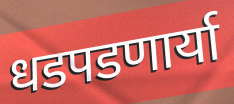
धडपडणार्या